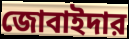
জোবাইদার